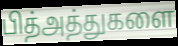
பித்அத்துகளை